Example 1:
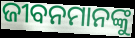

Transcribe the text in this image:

ଜୀବନମାନଙ୍କୁ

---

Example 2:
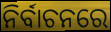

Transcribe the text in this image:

ନିର୍ବାଚନରେ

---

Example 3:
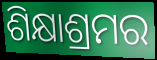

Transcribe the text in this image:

ଶିକ୍ଷାଶ୍ରମର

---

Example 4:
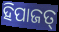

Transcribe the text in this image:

ହିପାଜତ୍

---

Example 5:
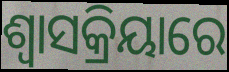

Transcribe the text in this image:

ଶ୍ୱାସକ୍ରିୟାରେ